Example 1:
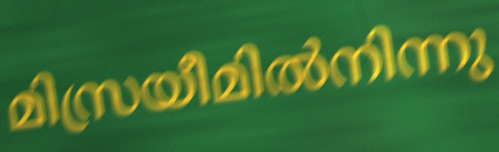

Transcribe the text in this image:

മിസ്രയീമിൽനിന്നു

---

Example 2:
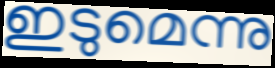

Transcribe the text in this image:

ഇടുമെന്നു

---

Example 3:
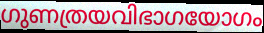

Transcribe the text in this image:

ഗുണത്രയവിഭാഗയോഗം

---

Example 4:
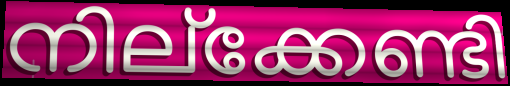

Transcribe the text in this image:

നില്ക്കേണ്ടി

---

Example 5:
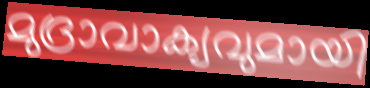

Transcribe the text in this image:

മുദ്രാവാക്യവുമായി